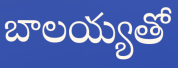
బాలయ్యతో